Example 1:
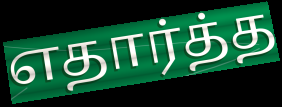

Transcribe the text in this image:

எதார்த்த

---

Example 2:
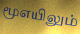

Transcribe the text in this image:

மூஎயிலும்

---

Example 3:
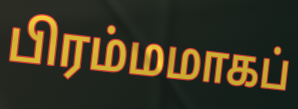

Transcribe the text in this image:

பிரம்மமாகப்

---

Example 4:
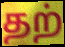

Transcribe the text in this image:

தற்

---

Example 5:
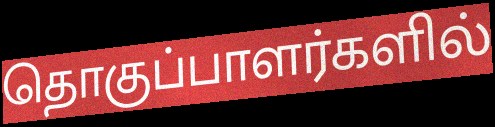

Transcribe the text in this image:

தொகுப்பாளர்களில்